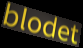
blodet